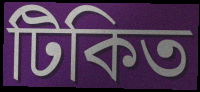
টিকিত